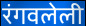
रंगवलेली